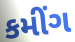
કમીંગ